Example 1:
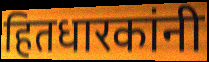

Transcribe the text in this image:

हितधारकांनी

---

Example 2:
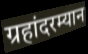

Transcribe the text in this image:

ग्रहांदरम्यान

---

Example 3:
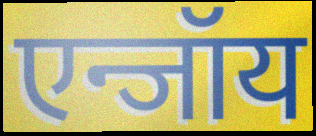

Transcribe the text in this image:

एन्जॉय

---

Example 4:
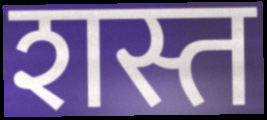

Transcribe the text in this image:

शस्त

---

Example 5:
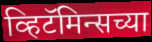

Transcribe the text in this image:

व्हिटॅमिन्सच्या